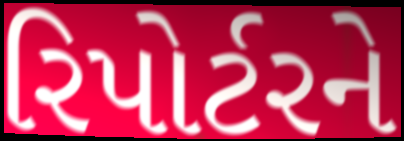
રિપોર્ટરને